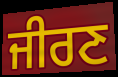
ਜੀਰਣ